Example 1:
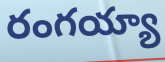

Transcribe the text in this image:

రంగయ్యా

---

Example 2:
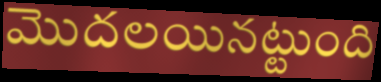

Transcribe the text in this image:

మొదలయినట్టుంది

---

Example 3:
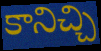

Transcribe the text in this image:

కానిచ్చి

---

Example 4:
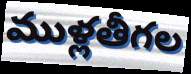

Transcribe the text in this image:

ముళ్లతీగల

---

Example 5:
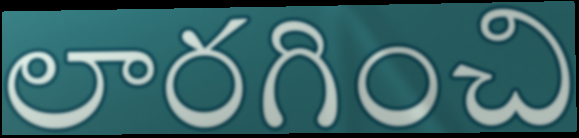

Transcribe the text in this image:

లారగించి